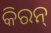
କିରନ୍